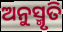
ଅନୁସ୍ମୃତି